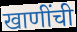
खाणींची